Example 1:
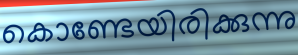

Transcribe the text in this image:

കൊണ്ടേയിരിക്കുന്നു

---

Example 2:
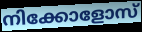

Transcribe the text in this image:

നിക്കോളോസ്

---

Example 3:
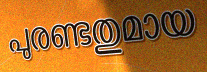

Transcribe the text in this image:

പുരണ്ടതുമായ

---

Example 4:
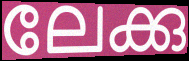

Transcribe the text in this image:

ലേക്കു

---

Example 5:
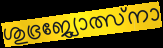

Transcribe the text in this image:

ശുഭ്രജ്യോത്സ്നാ